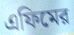
এফিমের